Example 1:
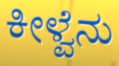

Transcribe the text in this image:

ಕೀಳ್ವೆನು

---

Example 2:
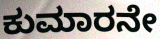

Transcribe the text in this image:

ಕುಮಾರನೇ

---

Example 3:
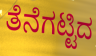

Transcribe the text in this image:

ತೆನೆಗಟ್ಟಿದ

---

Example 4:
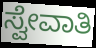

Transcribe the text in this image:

ಸ್ವೇವಾತಿ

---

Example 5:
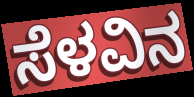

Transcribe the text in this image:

ಸೆಳವಿನ